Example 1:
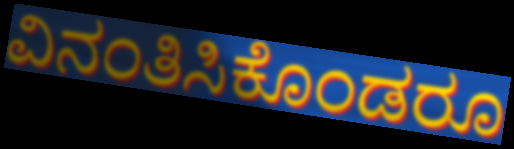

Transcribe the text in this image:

ವಿನಂತಿಸಿಕೊಂಡರೂ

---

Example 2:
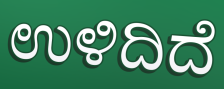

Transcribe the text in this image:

ಉಳಿದಿದೆ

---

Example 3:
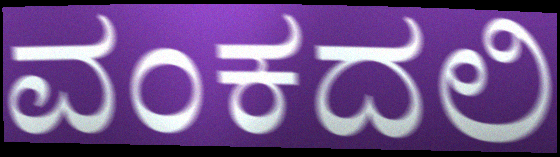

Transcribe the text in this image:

ವಂಕದಲಿ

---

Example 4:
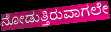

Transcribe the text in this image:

ನೋಡುತ್ತಿರುವಾಗಲೇ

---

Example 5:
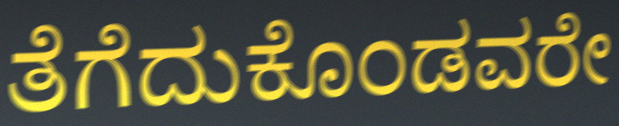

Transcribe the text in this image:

ತೆಗೆದುಕೊಂಡವರೇ